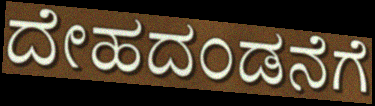
ದೇಹದಂಡನೆಗೆ